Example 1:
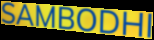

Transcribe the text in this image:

SAMBODHI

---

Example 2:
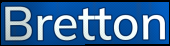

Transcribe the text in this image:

Bretton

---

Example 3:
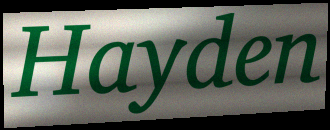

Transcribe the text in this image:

Hayden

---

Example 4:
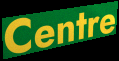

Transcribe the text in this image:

Centre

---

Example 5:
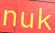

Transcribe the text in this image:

nuk